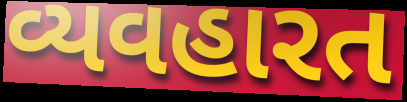
વ્યવહારત